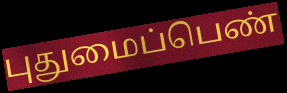
புதுமைப்பெண்